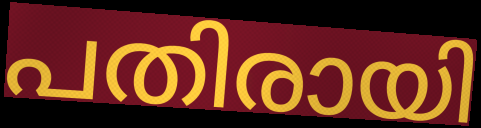
പതിരായി